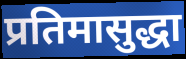
प्रतिमासुद्धा